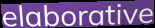
elaborative